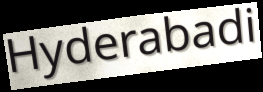
Hyderabadi